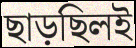
ছাড়ছিলই